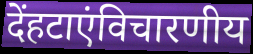
देंहटाएंविचारणीय